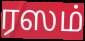
ரஸம்